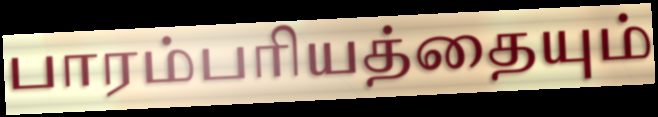
பாரம்பரியத்தையும்